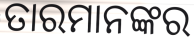
ତାରମାନଙ୍କର